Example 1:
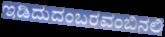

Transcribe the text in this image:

ಇಡಿದುದಂಬರವಂಬಿನಲಿ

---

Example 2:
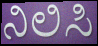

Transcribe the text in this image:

ನಿಲಿಸಿ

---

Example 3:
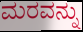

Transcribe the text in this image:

ಮರವನ್ನು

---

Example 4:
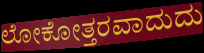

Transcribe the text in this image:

ಲೋಕೋತ್ತರವಾದುದು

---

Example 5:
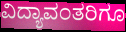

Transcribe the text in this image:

ವಿದ್ಯಾವಂತರಿಗೂ